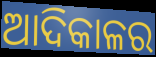
ଆଦିକାଳର